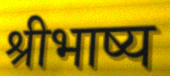
श्रीभाष्य